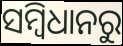
ସମ୍ବିଧାନରୁ